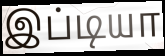
இப்டியா